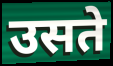
उसते